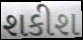
શકીશ